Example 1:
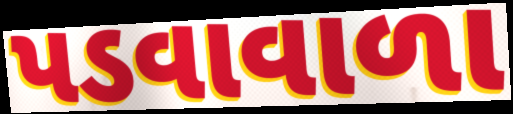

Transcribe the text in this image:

પડવાવાળા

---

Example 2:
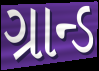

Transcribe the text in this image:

ગ્રાન્ડ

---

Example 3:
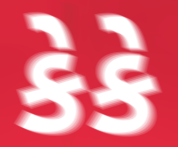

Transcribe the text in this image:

કેકે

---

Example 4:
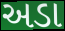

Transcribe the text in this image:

અડા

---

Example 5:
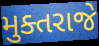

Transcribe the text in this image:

મુક્તરાજે